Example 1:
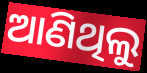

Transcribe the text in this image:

ଆଣିଥିଲୁ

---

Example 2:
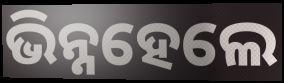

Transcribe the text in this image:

ଭିନ୍ନହେଲେ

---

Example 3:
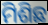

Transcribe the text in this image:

ମିଶିଛ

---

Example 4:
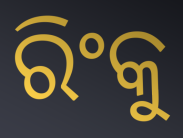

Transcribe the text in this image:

ରିଂକୁ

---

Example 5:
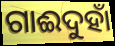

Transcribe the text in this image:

ଗାଈଦୁହାଁ